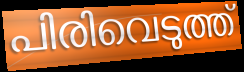
പിരിവെടുത്ത്